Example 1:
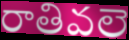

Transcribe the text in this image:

రాతివలె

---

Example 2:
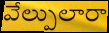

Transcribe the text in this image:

వేల్పులారా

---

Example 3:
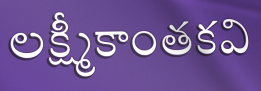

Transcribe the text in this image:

లక్ష్మీకాంతకవి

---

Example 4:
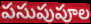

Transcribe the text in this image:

పసుపుపూల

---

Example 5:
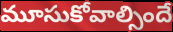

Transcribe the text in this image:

మూసుకోవాల్సిందే